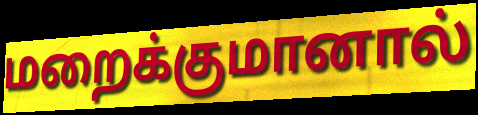
மறைக்குமானால்